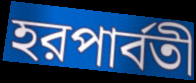
হরপার্বতী